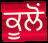
ਕੂਲੋਂ